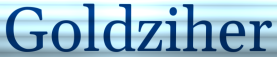
Goldziher